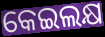
କେଇଲକ୍ଷ